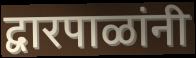
द्वारपाळांनी